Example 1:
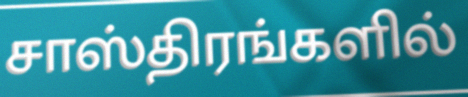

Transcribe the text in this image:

சாஸ்திரங்களில்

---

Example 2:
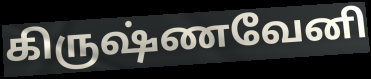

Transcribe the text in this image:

கிருஷ்ணவேனி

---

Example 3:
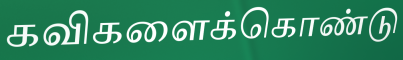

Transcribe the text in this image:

கவிகளைக்கொண்டு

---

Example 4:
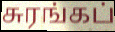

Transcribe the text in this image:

சுரங்கப்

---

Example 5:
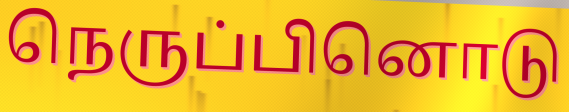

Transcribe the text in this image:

நெருப்பினொடு